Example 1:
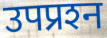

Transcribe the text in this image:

उपप्रश्‍न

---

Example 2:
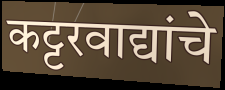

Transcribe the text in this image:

कट्टरवाद्यांचे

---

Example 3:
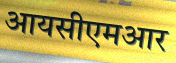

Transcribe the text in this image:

आयसीएमआर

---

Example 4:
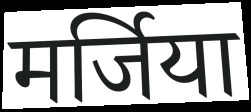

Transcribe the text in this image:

मर्जिया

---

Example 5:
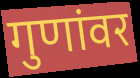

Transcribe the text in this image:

गुणांवर